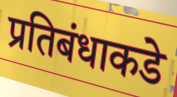
प्रतिबंधाकडे